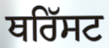
ਥਰਿੱਸਟ